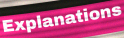
Explanations